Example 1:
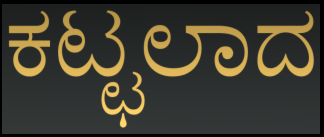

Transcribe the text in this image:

ಕಟ್ಟಲಾದ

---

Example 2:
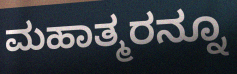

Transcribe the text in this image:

ಮಹಾತ್ಮರನ್ನೂ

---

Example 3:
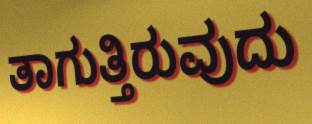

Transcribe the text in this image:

ತಾಗುತ್ತಿರುವುದು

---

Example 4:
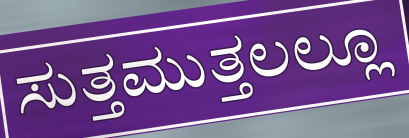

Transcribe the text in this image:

ಸುತ್ತಮುತ್ತಲಲ್ಲೂ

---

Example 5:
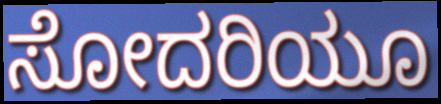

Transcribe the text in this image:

ಸೋದರಿಯೂ